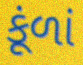
કૂંળાં